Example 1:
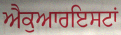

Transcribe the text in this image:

ਐਕੁਆਰਇਸਟਾਂ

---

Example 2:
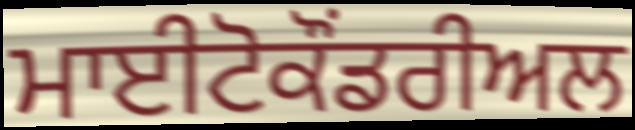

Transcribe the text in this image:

ਮਾਈਟੋਕੌਂਡਰੀਅਲ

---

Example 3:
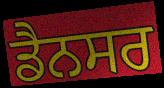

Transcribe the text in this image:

ਡੈਨਸਰ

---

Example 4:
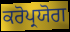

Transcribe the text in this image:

ਕਰੋਪ੍ਰਯੋਗ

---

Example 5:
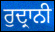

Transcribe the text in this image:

ਰੁਦ੍ਰਾਨੀ